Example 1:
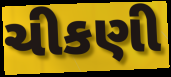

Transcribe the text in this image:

ચીકણી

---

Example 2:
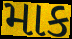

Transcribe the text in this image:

માક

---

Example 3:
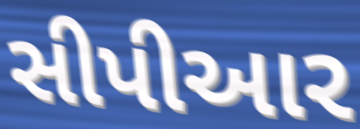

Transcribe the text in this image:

સીપીઆર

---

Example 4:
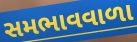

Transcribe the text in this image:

સમભાવવાળા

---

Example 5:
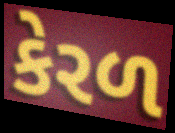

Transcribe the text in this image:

કેરળ